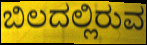
ಬಿಲದಲ್ಲಿರುವ